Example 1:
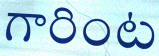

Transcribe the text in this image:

గారింట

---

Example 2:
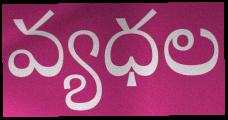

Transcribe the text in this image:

వ్యధల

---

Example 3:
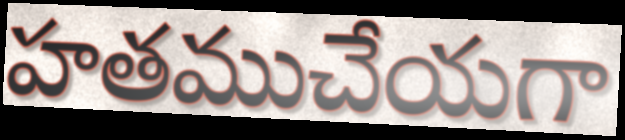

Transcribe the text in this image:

హతముచేయగా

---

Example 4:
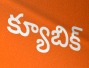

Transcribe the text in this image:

క్యూబిక్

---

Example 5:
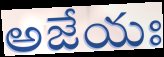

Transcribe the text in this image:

అజేయః